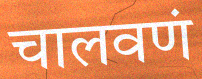
चालवणं